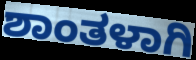
ಶಾಂತಳಾಗಿ